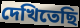
দেখিতেছি